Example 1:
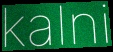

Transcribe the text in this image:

kalni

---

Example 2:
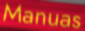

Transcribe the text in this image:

Manuas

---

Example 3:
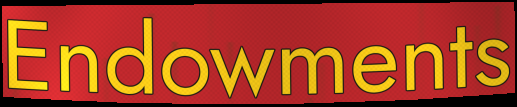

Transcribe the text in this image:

Endowments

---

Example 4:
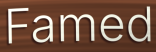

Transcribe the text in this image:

Famed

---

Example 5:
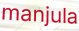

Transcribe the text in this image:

manjula